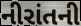
નીરાંતની